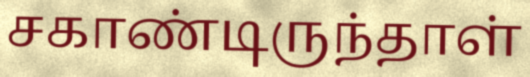
சகாண்டிருந்தாள்